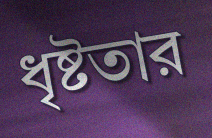
ধৃষ্টতার